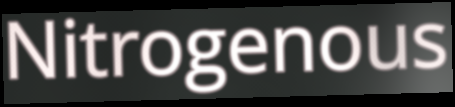
Nitrogenous